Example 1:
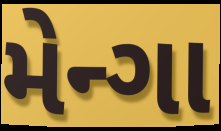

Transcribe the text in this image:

મેન્ગા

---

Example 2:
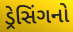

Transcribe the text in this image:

ડ્રેસિંગનો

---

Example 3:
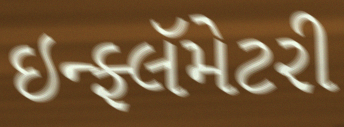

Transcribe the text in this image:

ઇન્ફ્લૅમેટરી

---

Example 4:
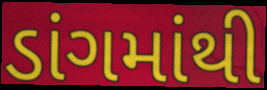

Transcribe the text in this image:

ડાંગમાંથી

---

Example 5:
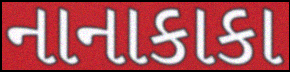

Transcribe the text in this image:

નાનાકાકા